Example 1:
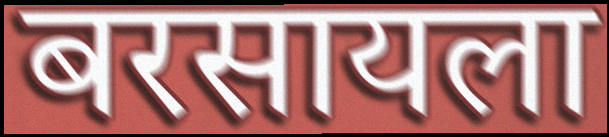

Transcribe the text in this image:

बरसायला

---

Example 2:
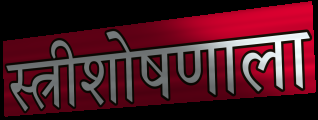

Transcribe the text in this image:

स्त्रीशोषणाला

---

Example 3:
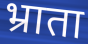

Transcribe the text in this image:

भ्राता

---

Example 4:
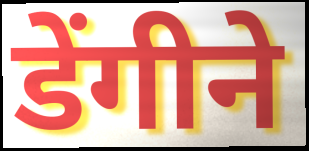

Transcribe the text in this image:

डेंगीने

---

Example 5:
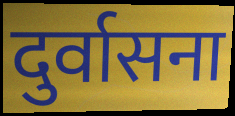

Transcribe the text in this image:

दुर्वासना